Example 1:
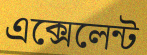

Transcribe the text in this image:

এক্সেলেন্ট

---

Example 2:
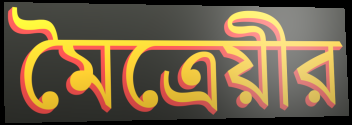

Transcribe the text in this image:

মৈত্রেয়ীর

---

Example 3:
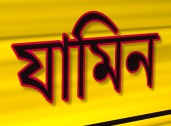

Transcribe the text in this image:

যামিন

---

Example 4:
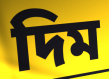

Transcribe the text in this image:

দিম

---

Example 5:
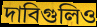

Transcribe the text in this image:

দাবিগুলিও